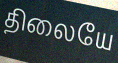
திலையே